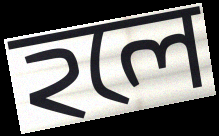
হলে